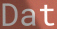
Dat